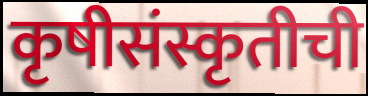
कृषीसंस्कृतीची